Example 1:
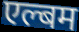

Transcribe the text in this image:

एल्बम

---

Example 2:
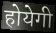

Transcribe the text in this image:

होयेगी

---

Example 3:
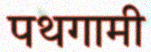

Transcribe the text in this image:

पथगामी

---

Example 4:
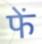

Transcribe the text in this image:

फें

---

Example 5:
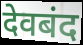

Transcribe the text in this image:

देवबंद